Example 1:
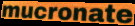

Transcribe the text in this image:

mucronate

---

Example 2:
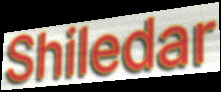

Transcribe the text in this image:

Shiledar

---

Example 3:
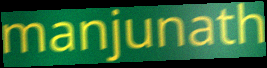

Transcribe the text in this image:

manjunath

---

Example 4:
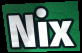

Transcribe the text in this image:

Nix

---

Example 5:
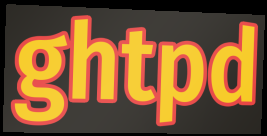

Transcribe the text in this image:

ghtpd